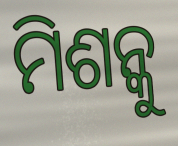
ମିଶନ୍କୁ